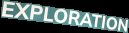
EXPLORATION